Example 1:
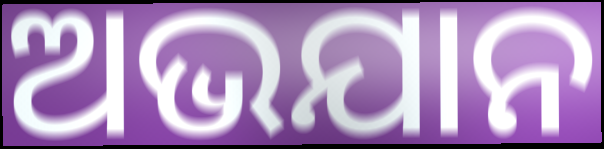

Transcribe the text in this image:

ଅଭଯାନ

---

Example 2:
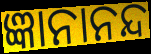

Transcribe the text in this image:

ଜ୍ଞାନାନନ୍ଦ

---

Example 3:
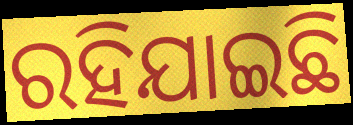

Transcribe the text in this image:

ରହିଯାଇଛି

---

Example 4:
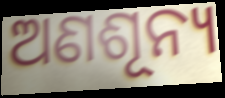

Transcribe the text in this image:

ଅଣଶୂନ୍ୟ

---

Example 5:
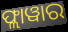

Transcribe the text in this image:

ଫ୍ଲାୱାର